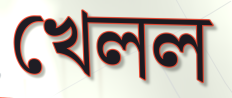
খেলল